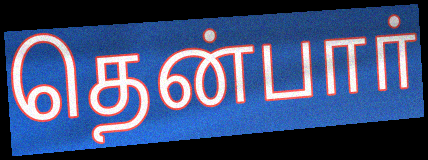
தென்பார்